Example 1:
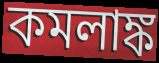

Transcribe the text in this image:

কমলাঙ্ক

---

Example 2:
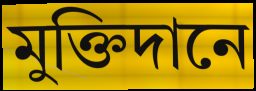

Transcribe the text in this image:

মুক্তিদানে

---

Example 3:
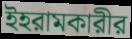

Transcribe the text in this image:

ইহরামকারীর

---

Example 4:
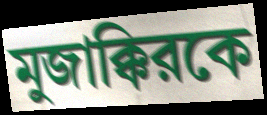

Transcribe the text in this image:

মুজাক্কিরকে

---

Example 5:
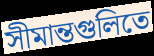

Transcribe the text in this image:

সীমান্তগুলিতে